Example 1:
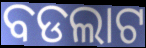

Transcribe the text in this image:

ବଡଲାଟ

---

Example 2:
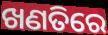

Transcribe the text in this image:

ଖଣତିରେ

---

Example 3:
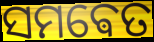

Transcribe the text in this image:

ସମଵେତ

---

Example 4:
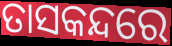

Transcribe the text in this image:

ତାସକନ୍ଦରେ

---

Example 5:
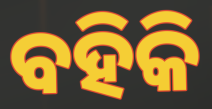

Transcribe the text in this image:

ବହିକି